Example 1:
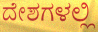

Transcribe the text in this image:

ದೇಶಗಳಲ್ಲಿ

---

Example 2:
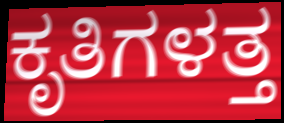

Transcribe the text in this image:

ಕೃತಿಗಳತ್ತ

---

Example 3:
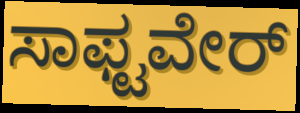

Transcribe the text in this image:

ಸಾಫ್ಟವೇರ್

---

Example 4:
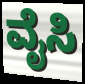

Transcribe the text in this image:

ವೈಸಿ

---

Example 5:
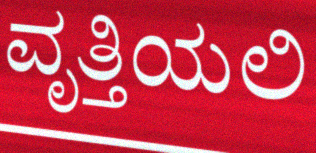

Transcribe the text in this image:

ವೃತ್ತಿಯಲಿ